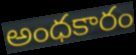
అంధకారం